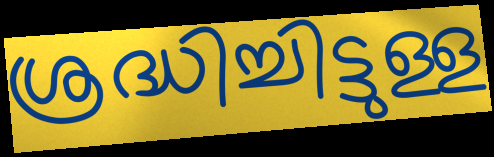
ശ്രദ്ധിച്ചിട്ടുള്ള